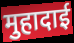
मुहादाई